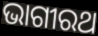
ଭାଗୀରଥ